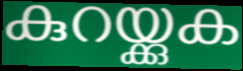
കുറയ്ക്കുക